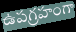
ఉపగ్రహంగా